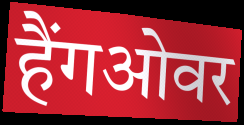
हैंगओवर